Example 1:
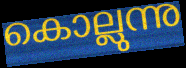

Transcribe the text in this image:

കൊല്ലുന്നു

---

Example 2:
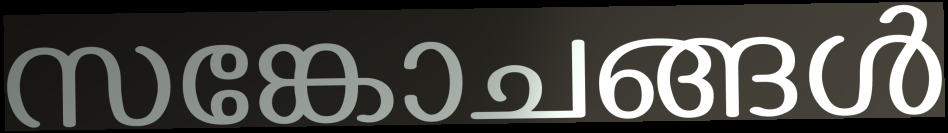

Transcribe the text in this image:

സങ്കോചങ്ങൾ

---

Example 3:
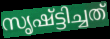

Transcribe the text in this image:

സൃഷ്ട്ടിച്ചത്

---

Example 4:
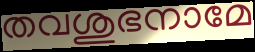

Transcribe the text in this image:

തവശുഭനാമേ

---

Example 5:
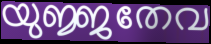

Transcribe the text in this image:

യുജ്ജതേവ